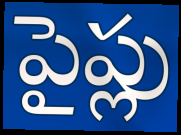
పైప్లు